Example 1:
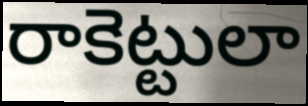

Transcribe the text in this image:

రాకెట్టులా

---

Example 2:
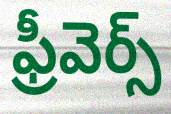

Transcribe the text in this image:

ఫ్రీవెర్స్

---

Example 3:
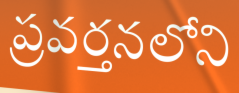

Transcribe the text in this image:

ప్రవర్తనలోని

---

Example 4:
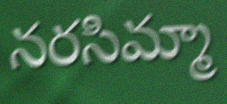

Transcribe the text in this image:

నరసిమ్మా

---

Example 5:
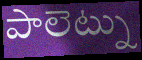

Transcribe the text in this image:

పాలెట్ను